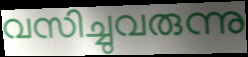
വസിച്ചുവരുന്നു